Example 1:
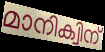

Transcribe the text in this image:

മാനിക്വിന്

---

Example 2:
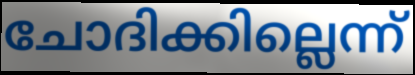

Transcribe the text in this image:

ചോദിക്കില്ലെന്ന്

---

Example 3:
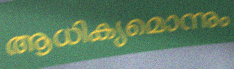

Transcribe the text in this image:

ആധിക്യമൊന്നും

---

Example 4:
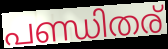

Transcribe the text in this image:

പണ്ഡിതര്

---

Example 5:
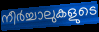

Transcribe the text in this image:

നീർച്ചാലുകളുടെ